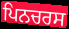
ਪਿਨਚਰਸ